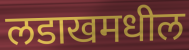
लडाखमधील